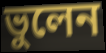
ভুলেন